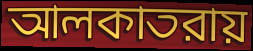
আলকাতরায়